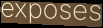
exposes